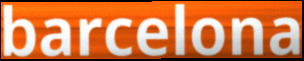
barcelona